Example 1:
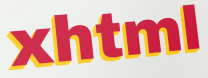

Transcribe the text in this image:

xhtml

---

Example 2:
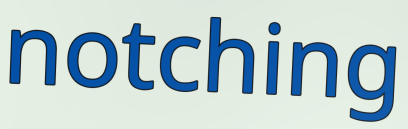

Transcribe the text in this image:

notching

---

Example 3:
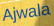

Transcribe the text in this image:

Ajwala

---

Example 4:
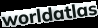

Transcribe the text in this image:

worldatlas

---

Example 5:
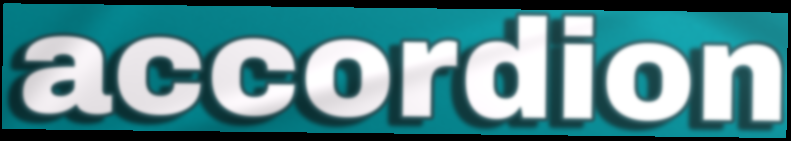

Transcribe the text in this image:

accordion